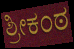
ಶ್ರೀಕಂಠ